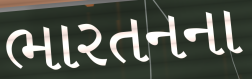
ભારતનના